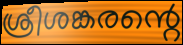
ശ്രീശങ്കരന്റെ